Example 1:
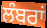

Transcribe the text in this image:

ਲੰਬਰਾਂ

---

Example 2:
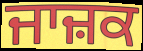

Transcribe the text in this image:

ਜਾਜ਼ਕ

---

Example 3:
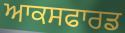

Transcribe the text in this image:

ਆਕਸਫਾਰਡ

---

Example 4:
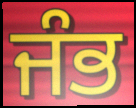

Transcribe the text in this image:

ਜੰਭ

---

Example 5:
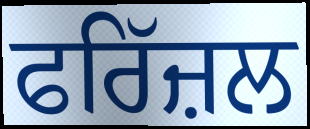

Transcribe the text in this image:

ਫਰਿੱਜ਼ਲ